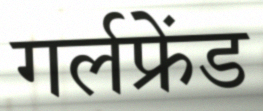
गर्लफ्रेंड